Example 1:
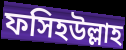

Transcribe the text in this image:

ফসিহউল্লাহ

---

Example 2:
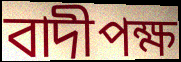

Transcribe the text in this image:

বাদীপক্ষ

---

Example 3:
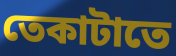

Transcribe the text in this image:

তেকাটাতে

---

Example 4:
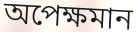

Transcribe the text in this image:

অপেক্ষমান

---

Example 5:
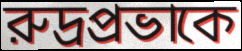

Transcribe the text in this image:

রুদ্রপ্রভাকে